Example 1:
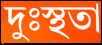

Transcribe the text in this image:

দুঃস্থতা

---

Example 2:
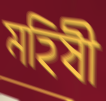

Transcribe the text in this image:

মহিষী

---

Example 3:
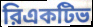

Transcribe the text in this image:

রিএকটিভ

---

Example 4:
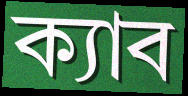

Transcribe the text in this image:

ক্যাব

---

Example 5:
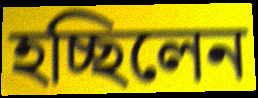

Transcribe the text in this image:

হচ্ছিলেন